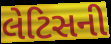
લેટિસની